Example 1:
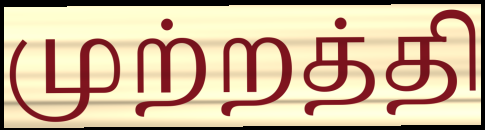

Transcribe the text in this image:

முற்றத்தி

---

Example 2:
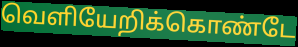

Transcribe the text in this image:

வெளியேறிக்கொண்டே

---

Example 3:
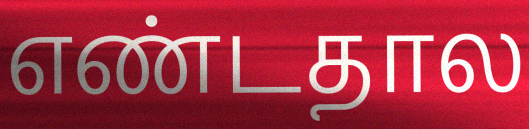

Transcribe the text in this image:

எண்டதால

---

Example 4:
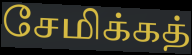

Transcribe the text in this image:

சேமிக்கத்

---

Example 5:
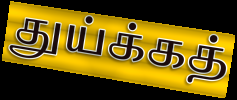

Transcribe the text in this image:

துய்க்கத்